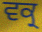
ਵਕ੍ਰ